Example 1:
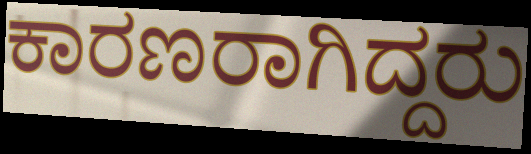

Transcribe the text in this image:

ಕಾರಣರಾಗಿದ್ದರು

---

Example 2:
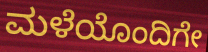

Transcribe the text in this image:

ಮಳೆಯೊಂದಿಗೇ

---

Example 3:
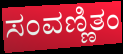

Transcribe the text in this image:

ಸಂವಣ್ಣಿತಂ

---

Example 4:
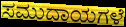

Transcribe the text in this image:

ಸಮುದಾಯಗಳೆ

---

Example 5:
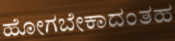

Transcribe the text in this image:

ಹೋಗಬೇಕಾದಂತಹ